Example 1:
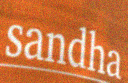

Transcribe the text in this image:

sandha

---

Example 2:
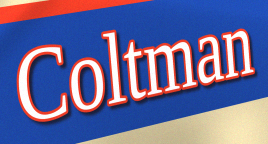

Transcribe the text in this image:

Coltman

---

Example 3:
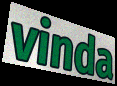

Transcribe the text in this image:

vinda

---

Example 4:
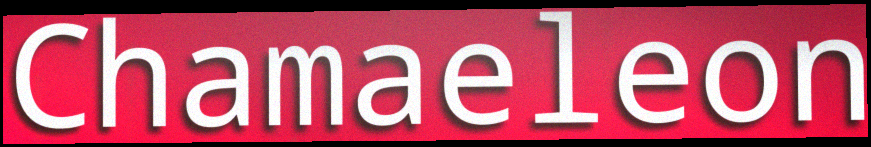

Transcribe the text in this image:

Chamaeleon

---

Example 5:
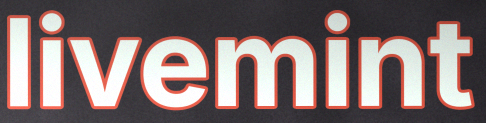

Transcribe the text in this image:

livemint